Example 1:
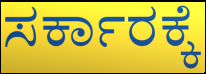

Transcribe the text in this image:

ಸರ್ಕಾರಕ್ಕೆ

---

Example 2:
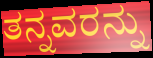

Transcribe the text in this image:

ತನ್ನವರನ್ನು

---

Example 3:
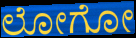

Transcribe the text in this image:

ಲೋಗೋ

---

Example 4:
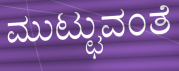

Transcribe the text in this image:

ಮುಟ್ಟುವಂತೆ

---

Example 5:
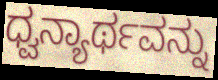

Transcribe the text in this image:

ಧ್ವನ್ಯಾರ್ಥವನ್ನು